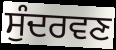
ਸੁੰਦਰਵਣ